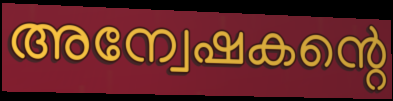
അന്വേഷകന്റെ